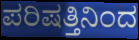
ಪರಿಷತ್ತಿನಿಂದ